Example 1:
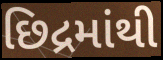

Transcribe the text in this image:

છિદ્રમાંથી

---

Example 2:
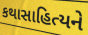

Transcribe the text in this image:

કથાસાહિત્યને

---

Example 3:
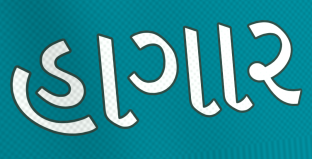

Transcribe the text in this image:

હાગાર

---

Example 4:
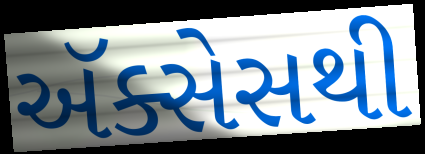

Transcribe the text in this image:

ઍક્સેસથી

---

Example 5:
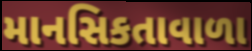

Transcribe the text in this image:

માનસિકતાવાળા